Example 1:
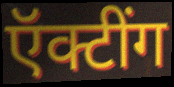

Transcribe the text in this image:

ऍक्टींग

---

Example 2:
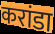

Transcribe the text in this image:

करांडा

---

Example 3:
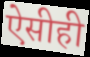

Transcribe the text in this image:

ऐसीही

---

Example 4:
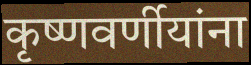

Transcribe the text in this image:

कृष्णवर्णीयांना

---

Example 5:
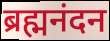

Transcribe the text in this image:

ब्रह्मनंदन